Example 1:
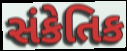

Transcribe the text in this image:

સંકેતિક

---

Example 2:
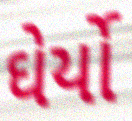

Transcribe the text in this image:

ઘેર્યો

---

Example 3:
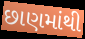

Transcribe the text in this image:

છાણમાંથી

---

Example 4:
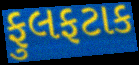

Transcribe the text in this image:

ફુલફટાક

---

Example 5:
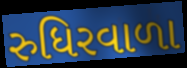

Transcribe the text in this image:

રુધિરવાળા